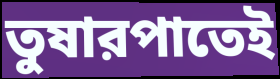
তুষারপাতেই